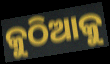
କୁଠିଆକୁ